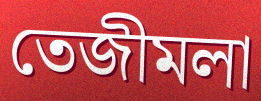
তেজীমলা